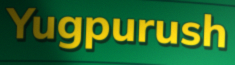
Yugpurush